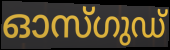
ഓസ്ഗുഡ്